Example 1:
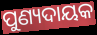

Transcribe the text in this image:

ପୁଣ୍ୟଦାୟକ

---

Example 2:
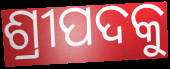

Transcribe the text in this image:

ଶ୍ରୀପଦକୁ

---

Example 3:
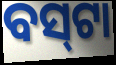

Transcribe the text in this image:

ବସ୍‍ଟା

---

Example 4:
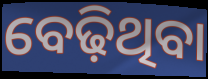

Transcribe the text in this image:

ବେଢ଼ିଥିବା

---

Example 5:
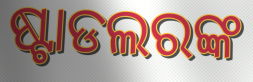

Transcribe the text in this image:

ଷ୍ଟାଡଲରଙ୍କ